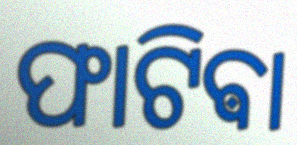
ଫାଟିଵା